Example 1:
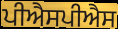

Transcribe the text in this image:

ਪੀਐਸਪੀਐਸ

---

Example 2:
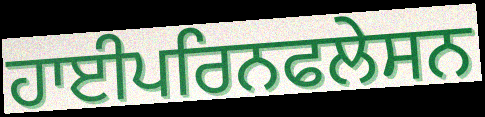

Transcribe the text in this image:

ਹਾਈਪਰਿਨਫਲੇਸਨ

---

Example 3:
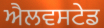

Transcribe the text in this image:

ਐਲਵਸਟੇਡ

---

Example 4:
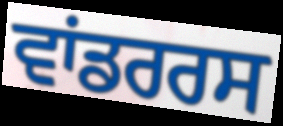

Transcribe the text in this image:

ਵਾਂਡਰਰਸ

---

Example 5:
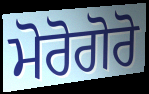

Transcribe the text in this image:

ਮੋਰੋਗੋਰੋ